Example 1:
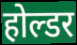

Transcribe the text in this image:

होल्डर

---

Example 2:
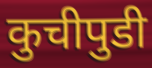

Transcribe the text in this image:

कुचीपुडी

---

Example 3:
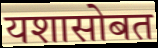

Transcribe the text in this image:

यशासोबत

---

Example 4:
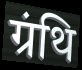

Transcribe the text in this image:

ग्रंथि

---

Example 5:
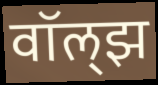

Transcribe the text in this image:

वॉल्झ